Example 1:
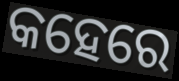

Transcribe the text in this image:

କହେରେ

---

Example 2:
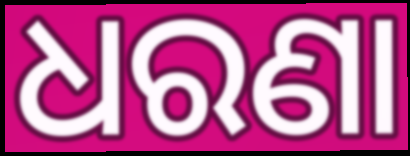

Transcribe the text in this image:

ଧରଣା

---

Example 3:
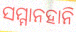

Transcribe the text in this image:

ସମ୍ମାନହାନି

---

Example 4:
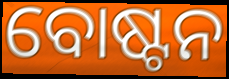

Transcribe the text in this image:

ବୋଷ୍ଟନ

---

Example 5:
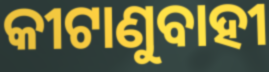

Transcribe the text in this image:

କୀଟାଣୁବାହୀ